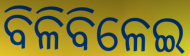
ବିଳିବିଳେଇ